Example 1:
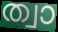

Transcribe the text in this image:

ത്വാ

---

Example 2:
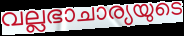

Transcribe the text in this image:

വല്ലഭാചാര്യയുടെ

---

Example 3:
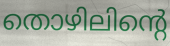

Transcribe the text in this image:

തൊഴിലിന്റെ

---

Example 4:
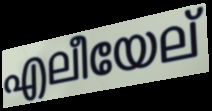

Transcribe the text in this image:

എലീയേല്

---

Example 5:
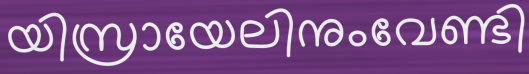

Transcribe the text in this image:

യിസ്രായേലിനുംവേണ്ടി